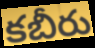
కబీరు